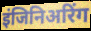
इंजिनिअरिंग